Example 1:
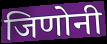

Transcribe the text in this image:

जिणोनी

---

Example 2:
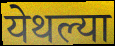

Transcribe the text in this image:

येथल्या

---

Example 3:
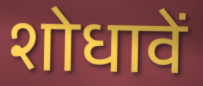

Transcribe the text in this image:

शोधावें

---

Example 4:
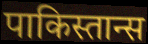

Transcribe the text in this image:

पाकिस्तान्स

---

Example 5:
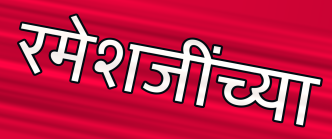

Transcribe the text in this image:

रमेशजींच्या